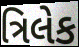
ત્રિલેક